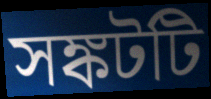
সঙ্কটটি